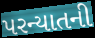
પરન્યાતની